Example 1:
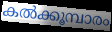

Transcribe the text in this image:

കൽക്കൂമ്പാരം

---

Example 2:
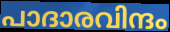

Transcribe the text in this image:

പാദാരവിന്ദം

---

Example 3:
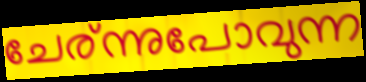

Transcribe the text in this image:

ചേര്ന്നുപോവുന്ന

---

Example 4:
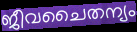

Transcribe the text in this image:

ജീവചൈതന്യം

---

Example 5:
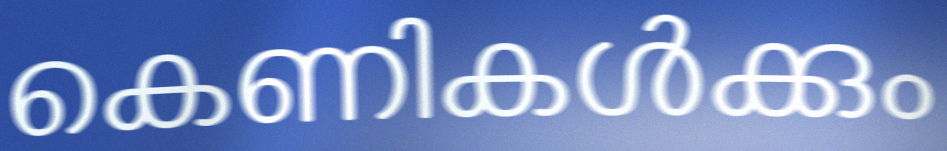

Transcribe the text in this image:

കെണികൾക്കും